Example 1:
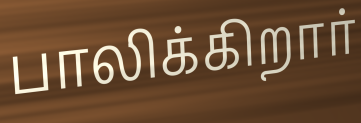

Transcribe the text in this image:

பாலிக்கிறார்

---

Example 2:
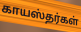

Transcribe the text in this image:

காயஸ்தர்கள்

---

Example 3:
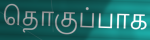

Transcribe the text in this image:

தொகுப்பாக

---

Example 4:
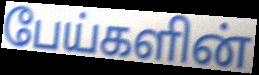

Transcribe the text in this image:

பேய்களின்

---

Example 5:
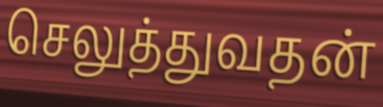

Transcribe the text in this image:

செலுத்துவதன்